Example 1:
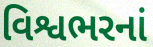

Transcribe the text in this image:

વિશ્વભરનાં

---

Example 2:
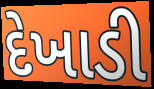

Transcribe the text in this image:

દેખાડી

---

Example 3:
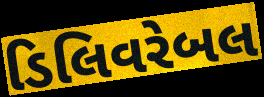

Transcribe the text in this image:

ડિલિવરેબલ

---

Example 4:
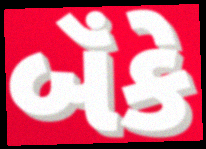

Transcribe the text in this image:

બૅંકે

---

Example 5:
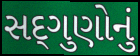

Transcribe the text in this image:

સદ્‌ગુણોનું